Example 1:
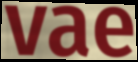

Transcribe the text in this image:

vae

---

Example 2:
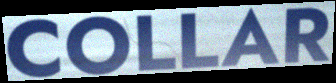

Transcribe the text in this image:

COLLAR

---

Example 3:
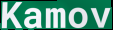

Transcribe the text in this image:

Kamov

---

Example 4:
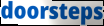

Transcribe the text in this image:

doorsteps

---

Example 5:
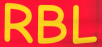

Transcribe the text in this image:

RBL